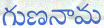
గుణనామ